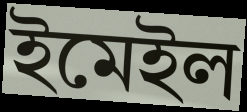
ইমেইল